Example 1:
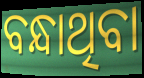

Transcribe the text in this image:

ବନ୍ଧାଥିବା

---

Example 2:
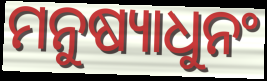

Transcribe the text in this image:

ମନୁଷ୍ୟାଧୁନଂ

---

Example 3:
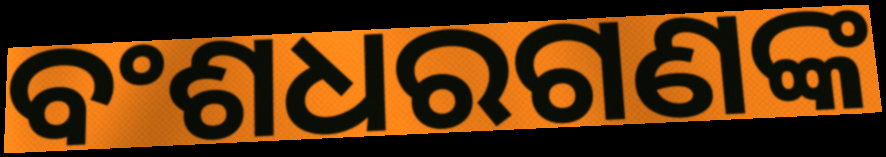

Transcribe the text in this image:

ବଂଶଧରଗଣଙ୍କ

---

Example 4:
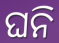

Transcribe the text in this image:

ଘନି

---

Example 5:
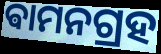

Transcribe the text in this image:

ଵାମନଗ୍ରହ